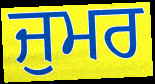
ਜੁਮਰ